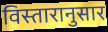
विस्तारानुसार